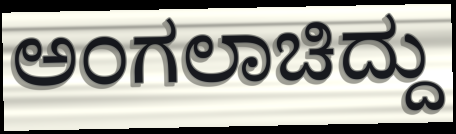
ಅಂಗಲಾಚಿದ್ದು